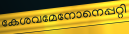
കേശവമേനോനെപ്പറ്റി